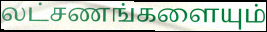
லட்சணங்களையும்